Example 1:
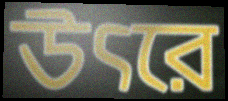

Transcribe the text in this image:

উৎরে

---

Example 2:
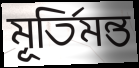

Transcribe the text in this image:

মূর্তিমন্ত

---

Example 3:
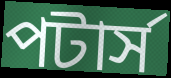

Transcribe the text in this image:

পটার্স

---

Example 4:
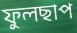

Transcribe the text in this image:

ফুলছাপ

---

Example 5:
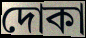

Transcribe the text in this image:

দোকা